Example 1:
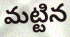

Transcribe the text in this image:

మట్టిన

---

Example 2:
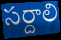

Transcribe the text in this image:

సర్దాలి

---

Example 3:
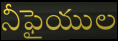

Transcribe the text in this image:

నీఫైయుల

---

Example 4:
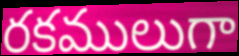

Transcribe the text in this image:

రకములుగా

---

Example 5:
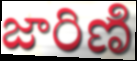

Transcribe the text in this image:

జారిణి